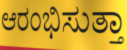
ಆರಂಭಿಸುತ್ತಾ